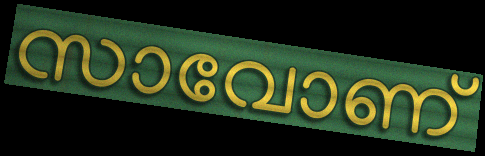
സാവോണ്